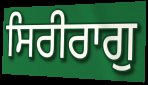
ਸਿਰੀਰਾਗੁ